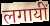
लगायीं